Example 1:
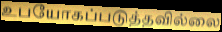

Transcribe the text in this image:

உபயோகப்படுத்தவில்லை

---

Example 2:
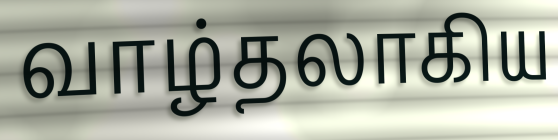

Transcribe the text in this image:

வாழ்தலாகிய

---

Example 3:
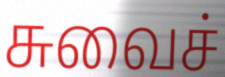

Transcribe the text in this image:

சுவைச்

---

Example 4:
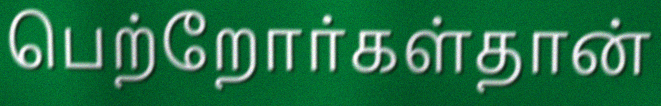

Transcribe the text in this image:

பெற்றோர்கள்தான்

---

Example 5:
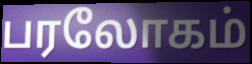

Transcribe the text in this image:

பரலோகம்